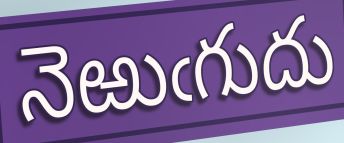
నెఱుఁగుదు